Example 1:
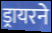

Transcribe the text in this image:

ड्रायरने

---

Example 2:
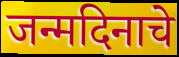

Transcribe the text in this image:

जन्मदिनाचे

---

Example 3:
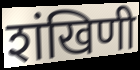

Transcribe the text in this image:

शंखिणी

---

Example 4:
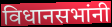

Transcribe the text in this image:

विधानसभांनी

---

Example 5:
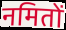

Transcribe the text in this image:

नमितों